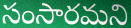
సంసారమని